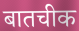
बातचीक